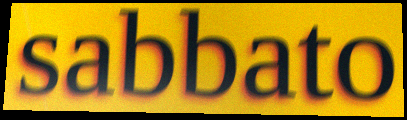
sabbato